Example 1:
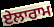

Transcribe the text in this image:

ਏਲਾਰਾਮ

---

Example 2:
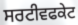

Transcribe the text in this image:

ਸਰਟੀਵਫਕੇਟ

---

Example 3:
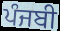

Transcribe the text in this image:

ਪੰਜਬੀ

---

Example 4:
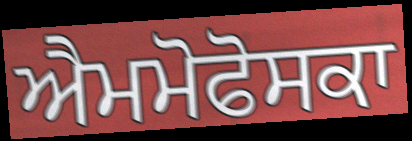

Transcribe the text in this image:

ਐਮਮੋਫੋਸਕਾ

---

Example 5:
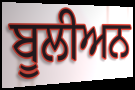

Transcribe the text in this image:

ਬੂਲੀਅਨ